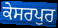
ਕੇਸਰਪੁਰ